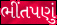
ભીંતપણું